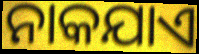
ନାକଯାଏ